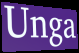
Unga